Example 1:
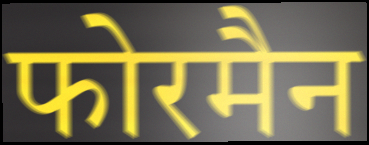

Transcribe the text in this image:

फोरमैन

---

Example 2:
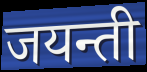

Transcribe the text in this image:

जयन्ती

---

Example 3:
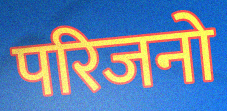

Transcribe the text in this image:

परिजनो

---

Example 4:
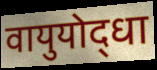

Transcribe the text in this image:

वायुयोद्धा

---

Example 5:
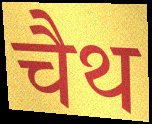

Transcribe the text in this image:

चैथ